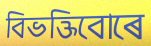
বিভক্তিবোৰে